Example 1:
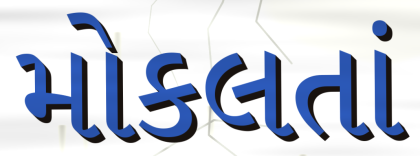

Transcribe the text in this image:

મોકલતાં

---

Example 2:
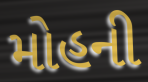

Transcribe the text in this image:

મોહની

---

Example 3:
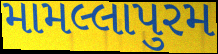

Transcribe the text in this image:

મામલ્લાપુરમ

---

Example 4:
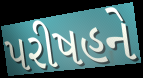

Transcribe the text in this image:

પરીષહને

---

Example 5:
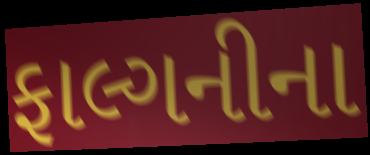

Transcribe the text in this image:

ફાલ્ગનીના